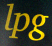
lpg